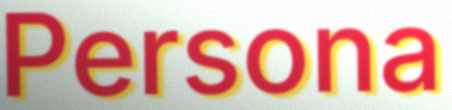
Persona